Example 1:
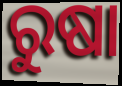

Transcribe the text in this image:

ରୁଷା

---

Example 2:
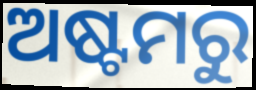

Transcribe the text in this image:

ଅଷ୍ଟମରୁ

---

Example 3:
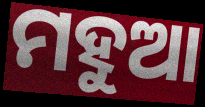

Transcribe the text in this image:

ମହୁଆ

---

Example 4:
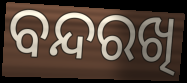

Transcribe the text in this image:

ବନ୍ଦରଖି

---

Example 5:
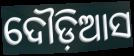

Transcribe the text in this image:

ଦୌଡ଼ିଆସ